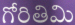
గోరితిమి